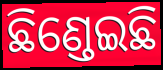
ଛିଣ୍ଡେଇଛି